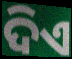
ଦିଏ